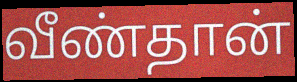
வீண்தான்